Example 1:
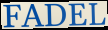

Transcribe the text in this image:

FADEL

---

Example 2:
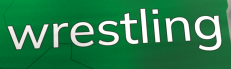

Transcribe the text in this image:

wrestling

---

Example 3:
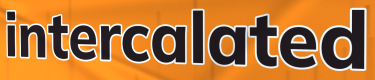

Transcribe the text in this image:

intercalated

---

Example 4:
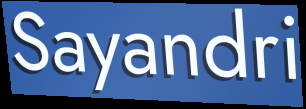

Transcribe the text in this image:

Sayandri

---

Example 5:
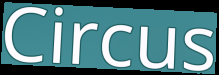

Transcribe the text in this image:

Circus